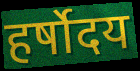
हर्षोदय